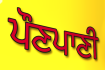
ਪੌਣਪਾਣੀ